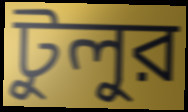
টুলুর